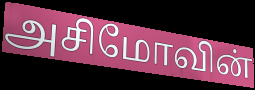
அசிமோவின்